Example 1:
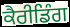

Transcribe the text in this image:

ਕੈਰੀਡਿੰਗ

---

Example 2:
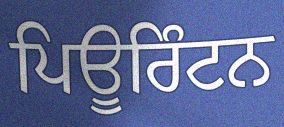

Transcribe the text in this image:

ਪਿਊਰਿੰਟਨ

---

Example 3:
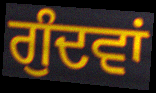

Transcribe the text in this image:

ਗੁੰਦਵਾਂ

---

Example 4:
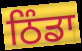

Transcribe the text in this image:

ਠਿੰਡਾ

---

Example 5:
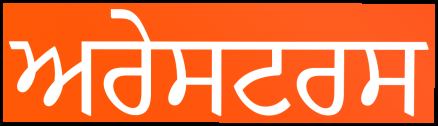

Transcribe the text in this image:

ਅਰੇਸਟਰਸ